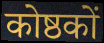
कोष्ठकों